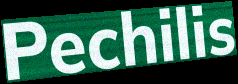
Pechilis